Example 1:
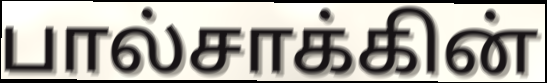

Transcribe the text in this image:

பால்சாக்கின்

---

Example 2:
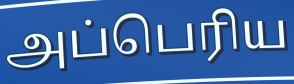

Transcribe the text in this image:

அப்பெரிய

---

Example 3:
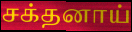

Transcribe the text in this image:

சக்தனாய்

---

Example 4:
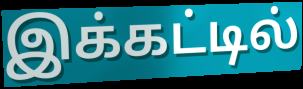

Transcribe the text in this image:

இக்கட்டில்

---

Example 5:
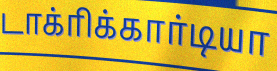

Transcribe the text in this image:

டாக்ரிக்கார்டியா